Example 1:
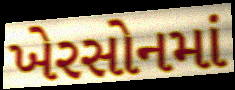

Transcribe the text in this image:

ખેરસોનમાં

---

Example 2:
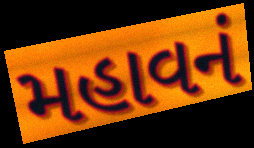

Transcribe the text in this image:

મહાવનં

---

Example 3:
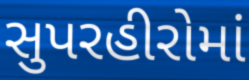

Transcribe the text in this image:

સુપરહીરોમાં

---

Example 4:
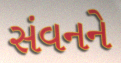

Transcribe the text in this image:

સંવનને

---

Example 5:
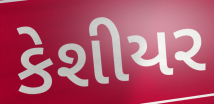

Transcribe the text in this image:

કેશીયર